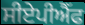
ਸੀਏਪੀਐੱਫ